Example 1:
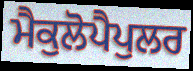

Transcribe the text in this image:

ਮੈਕੁਲੋਪੈਪੁਲਰ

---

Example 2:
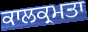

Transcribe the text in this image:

ਕਾਲਕ੍ਰਮਤਾ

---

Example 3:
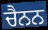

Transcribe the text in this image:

ਚੈਨਨ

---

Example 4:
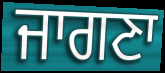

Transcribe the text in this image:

ਜਾਗਣਾ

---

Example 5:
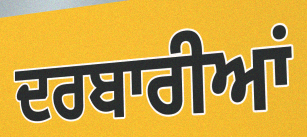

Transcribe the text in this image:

ਦਰਬਾਰੀਆਂ